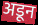
अडून